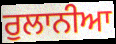
ਰੁਲਾਨੀਆ